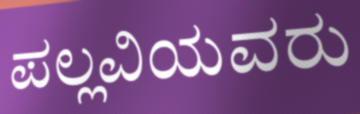
ಪಲ್ಲವಿಯವರು